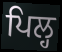
ਪਿਲ੍ਹ